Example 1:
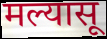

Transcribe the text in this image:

मल्यासू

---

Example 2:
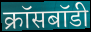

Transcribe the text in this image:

क्रॉसबॉडी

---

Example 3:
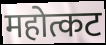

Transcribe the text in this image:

महोत्कट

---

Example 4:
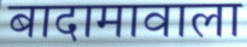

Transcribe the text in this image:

बादामावाला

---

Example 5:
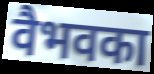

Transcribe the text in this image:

वैभवका